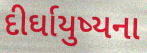
દીર્ઘાયુષ્યના